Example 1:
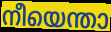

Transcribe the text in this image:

നീയെന്താ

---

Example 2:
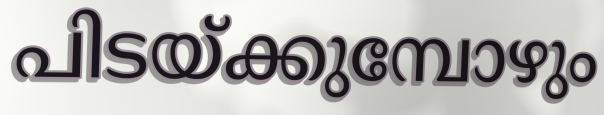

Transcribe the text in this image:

പിടയ്ക്കുമ്പോഴും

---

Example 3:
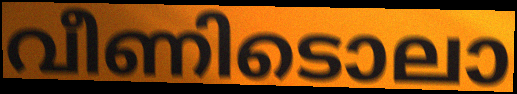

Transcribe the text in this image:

വീണിടൊലാ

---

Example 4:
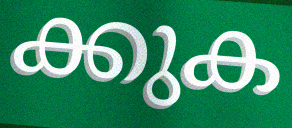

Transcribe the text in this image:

ക്കുക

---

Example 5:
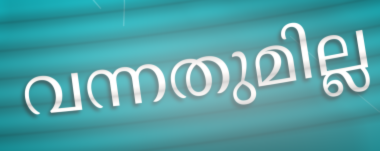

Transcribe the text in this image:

വന്നതുമില്ല